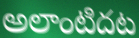
అలాంటిదట